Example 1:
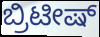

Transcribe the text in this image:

ಬ್ರಿಟೀಷ್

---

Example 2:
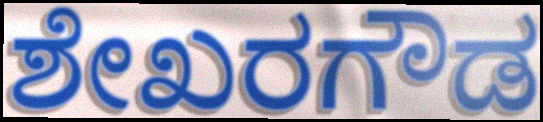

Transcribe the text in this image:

ಶೇಖರಗೌಡ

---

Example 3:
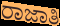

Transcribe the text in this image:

ರಾಜಾತಿ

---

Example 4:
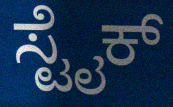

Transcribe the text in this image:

ಸ್ಟೈಕ್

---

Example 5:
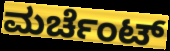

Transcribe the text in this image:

ಮರ್ಚೆಂಟ್